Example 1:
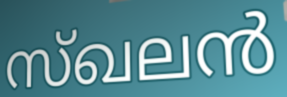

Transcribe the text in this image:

സ്ഖലൻ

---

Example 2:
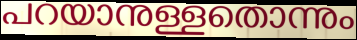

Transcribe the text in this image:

പറയാനുള്ളതൊന്നും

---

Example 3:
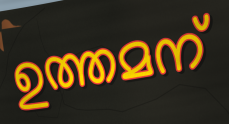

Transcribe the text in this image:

ഉത്തമന്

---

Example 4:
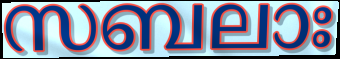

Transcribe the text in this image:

സബലാഃ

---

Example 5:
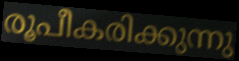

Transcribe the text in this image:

രൂപീകരിക്കുന്നു